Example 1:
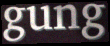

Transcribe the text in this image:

gung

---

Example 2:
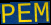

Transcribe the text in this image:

PEM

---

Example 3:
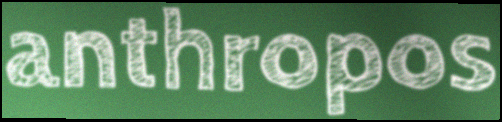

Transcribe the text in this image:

anthropos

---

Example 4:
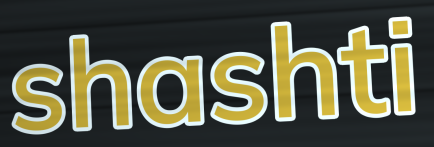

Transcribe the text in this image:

shashti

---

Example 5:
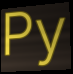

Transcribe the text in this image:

Py